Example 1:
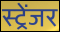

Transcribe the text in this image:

स्ट्रेंजर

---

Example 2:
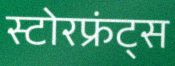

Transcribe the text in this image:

स्टोरफ्रंट्स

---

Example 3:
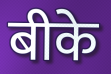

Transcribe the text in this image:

बीके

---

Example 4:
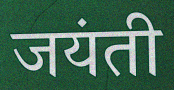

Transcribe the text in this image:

जयंती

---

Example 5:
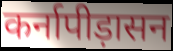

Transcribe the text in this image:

कर्नापीड़ासन